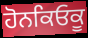
ਹੋਨਕਿਓਕੂ